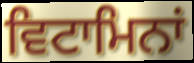
ਵਿਟਾਮਿਨਾਂ